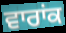
ਵਾਰਾਂਕ